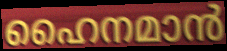
ഹൈനമാൻ